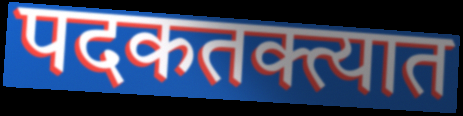
पदकतक्त्यात